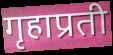
गृहाप्रती